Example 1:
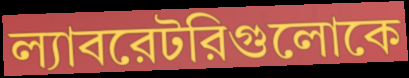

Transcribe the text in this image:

ল্যাবরেটরিগুলোকে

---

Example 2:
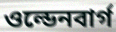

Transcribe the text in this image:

ওল্ডেনবার্গ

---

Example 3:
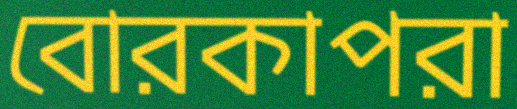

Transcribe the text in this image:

বোরকাপরা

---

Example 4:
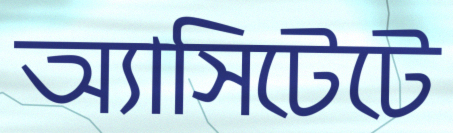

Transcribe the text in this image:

অ্যাসিটেটে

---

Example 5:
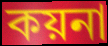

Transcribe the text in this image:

কয়না